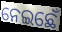
ନେଇଛେଁ